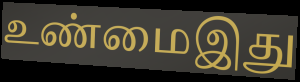
உண்மைஇது